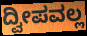
ದ್ವೀಪವಲ್ಲ